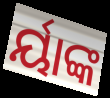
ର୍ୟାଙ୍କ